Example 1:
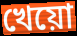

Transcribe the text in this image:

খেয়ো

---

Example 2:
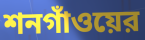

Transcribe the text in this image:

শনগাঁওয়ের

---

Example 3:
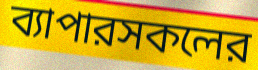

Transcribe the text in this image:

ব্যাপারসকলের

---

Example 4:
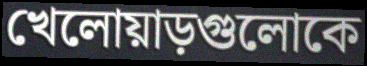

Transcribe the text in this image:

খেলোয়াড়গুলোকে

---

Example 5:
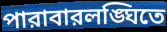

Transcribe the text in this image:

পারাবারলঙ্ঘিতে